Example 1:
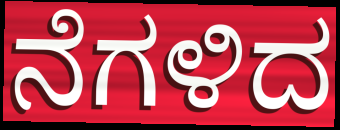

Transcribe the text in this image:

ನೆಗಳಿದ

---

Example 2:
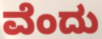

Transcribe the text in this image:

ವೆಂದು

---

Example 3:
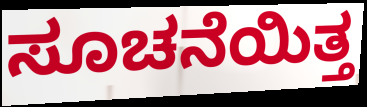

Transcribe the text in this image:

ಸೂಚನೆಯಿತ್ತ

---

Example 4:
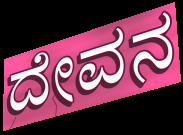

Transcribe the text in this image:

ದೇವನ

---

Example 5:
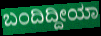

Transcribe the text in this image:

ಬಂದಿದ್ದೀಯಾ